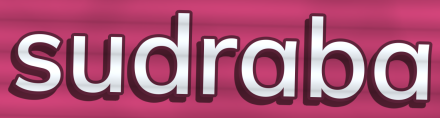
sudraba